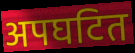
अपघटित